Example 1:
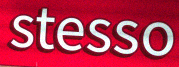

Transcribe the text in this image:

stesso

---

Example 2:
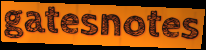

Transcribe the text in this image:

gatesnotes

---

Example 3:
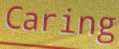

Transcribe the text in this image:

Caring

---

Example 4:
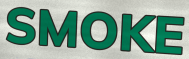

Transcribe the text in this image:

SMOKE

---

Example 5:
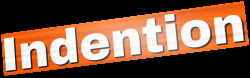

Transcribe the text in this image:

Indention